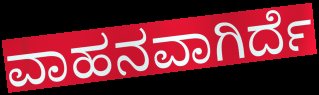
ವಾಹನವಾಗಿರ್ದೆ